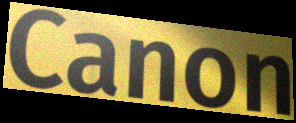
Canon